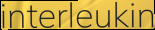
interleukin